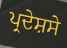
ਪ੍ਰਦੇਸ਼ਸੇ